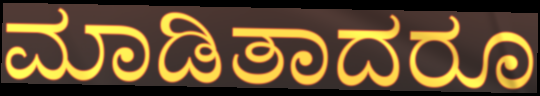
ಮಾಡಿತಾದರೂ